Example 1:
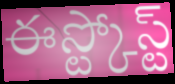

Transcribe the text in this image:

ఈస్ట్కోస్ట్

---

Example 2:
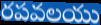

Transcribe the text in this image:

రపవలయు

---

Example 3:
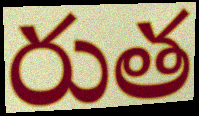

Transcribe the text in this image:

రుత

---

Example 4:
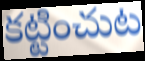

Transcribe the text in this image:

కట్టించుట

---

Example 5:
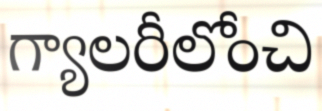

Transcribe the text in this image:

గ్యాలరీలోంచి